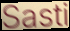
Sasti